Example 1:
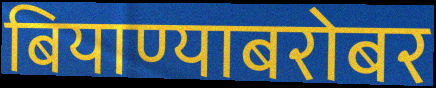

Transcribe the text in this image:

बियाण्याबरोबर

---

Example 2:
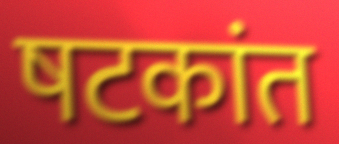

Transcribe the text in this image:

षटकांत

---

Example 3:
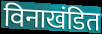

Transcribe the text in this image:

विनाखंडित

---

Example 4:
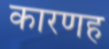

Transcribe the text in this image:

कारणह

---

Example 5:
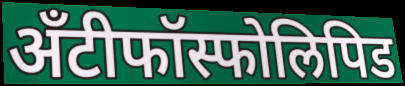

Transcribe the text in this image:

अँटीफॉस्फोलिपिड